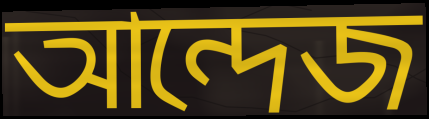
আন্দেজ